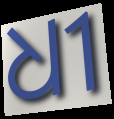
ଧୀ